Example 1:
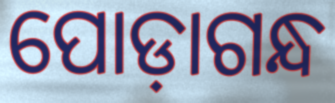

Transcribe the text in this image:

ପୋଡ଼ାଗନ୍ଧ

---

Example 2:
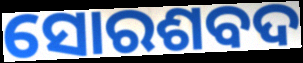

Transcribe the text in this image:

ସୋରଶବଦ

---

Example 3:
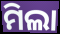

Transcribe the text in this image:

ମିଲା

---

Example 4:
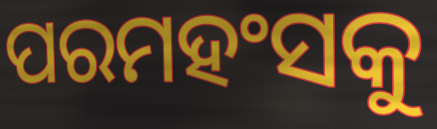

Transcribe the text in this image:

ପରମହଂସକୁ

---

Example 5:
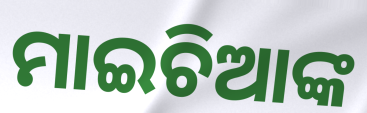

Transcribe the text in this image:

ମାଇଚିଆଙ୍କ